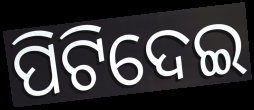
ପିଟିଦେଇ